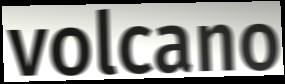
volcano